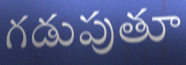
గడుపుతూ